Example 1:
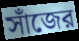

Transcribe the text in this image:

সাঁজের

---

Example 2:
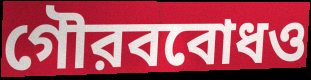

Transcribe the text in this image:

গৌরববোধও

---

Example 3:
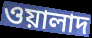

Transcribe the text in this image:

ওয়ালাদ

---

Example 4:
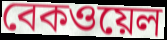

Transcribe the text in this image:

বেকওয়েল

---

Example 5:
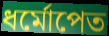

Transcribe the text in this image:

ধর্মোপেত